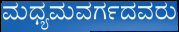
ಮಧ್ಯಮವರ್ಗದವರು